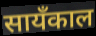
सायँकाल